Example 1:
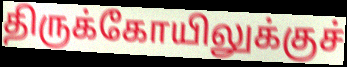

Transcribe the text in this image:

திருக்கோயிலுக்குச்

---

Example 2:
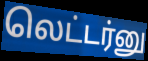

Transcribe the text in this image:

லெட்டர்னு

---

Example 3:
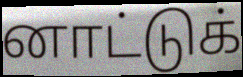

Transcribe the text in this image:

னாட்டுக்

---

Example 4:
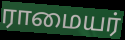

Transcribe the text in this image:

ராமையர்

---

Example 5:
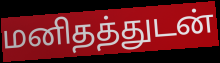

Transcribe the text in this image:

மனிதத்துடன்